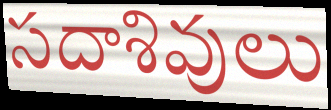
సదాశివులు